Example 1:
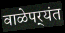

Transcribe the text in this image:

वाळेपर्यंत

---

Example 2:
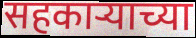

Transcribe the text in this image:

सहकार्‍याच्या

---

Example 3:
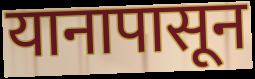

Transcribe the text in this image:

यानापासून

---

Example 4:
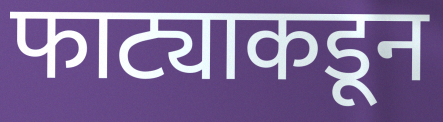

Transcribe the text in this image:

फाट्याकडून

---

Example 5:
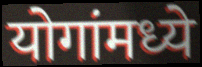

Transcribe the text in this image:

योगांमध्ये